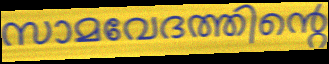
സാമവേദത്തിന്റെ